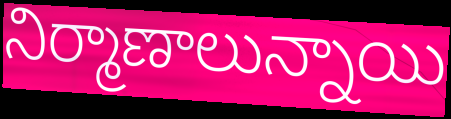
నిర్మాణాలున్నాయి